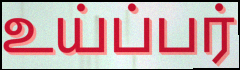
உய்ப்பர்